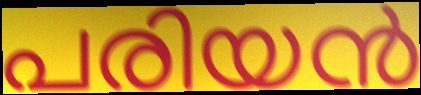
പരിയൻ